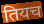
तियच